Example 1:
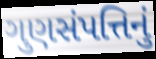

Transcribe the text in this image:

ગુણસંપત્તિનું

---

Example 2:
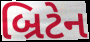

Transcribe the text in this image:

બ્રિટેન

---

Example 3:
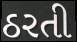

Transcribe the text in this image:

ઠરતી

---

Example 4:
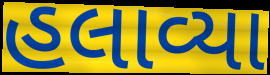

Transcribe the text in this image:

હલાવ્યા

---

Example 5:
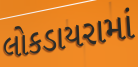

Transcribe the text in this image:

લોકડાયરામાં